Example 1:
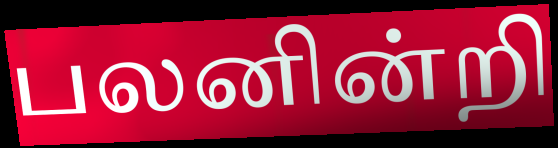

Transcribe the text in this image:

பலனின்றி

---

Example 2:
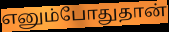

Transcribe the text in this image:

எனும்போதுதான்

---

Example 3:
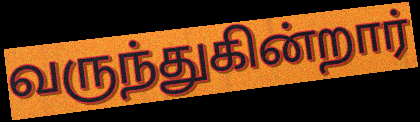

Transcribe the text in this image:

வருந்துகின்றார்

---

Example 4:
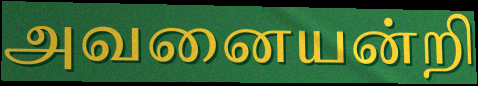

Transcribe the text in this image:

அவனையன்றி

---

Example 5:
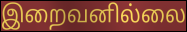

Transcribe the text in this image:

இறைவனில்லை